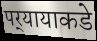
पर्यायाकडे